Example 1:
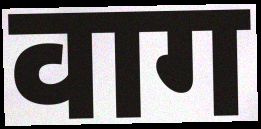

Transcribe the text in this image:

वाग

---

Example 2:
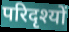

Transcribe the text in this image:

परिदृश्यों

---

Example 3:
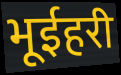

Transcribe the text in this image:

भूईहरी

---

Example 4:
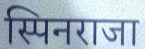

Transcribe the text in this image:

स्पिनराजा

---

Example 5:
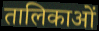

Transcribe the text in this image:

तालिकाओं